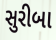
સુરીબા